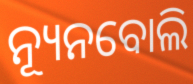
ନ୍ୟୂନବୋଲି